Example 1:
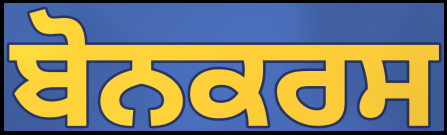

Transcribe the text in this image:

ਬੋਨਕਰਸ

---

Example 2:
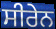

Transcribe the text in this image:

ਸੀਰੇਨ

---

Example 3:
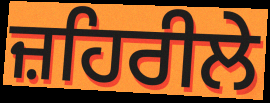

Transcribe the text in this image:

ਜ਼ਹਿਰੀਲੇ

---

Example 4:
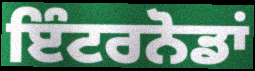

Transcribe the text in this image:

ਇੰਟਰਨੋਡਾਂ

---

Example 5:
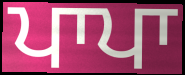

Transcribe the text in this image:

ਪਾਪਾ